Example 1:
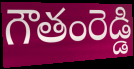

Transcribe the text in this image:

గౌతంరెడ్డి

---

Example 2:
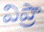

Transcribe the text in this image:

విప్రా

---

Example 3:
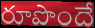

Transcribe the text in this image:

రూపొందే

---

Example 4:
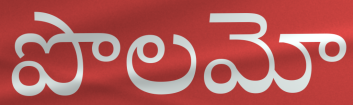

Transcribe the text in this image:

పొలమో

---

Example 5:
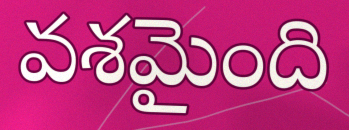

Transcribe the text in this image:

వశమైంది